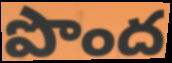
పొంద